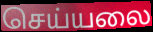
செய்யலை